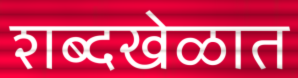
शब्दखेळात